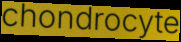
chondrocyte